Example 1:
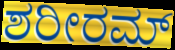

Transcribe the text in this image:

ಶರೀರಮ್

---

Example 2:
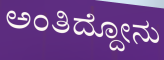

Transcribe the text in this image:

ಅಂತಿದ್ದೋನು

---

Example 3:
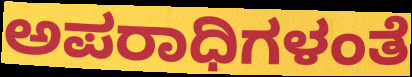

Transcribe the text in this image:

ಅಪರಾಧಿಗಳಂತೆ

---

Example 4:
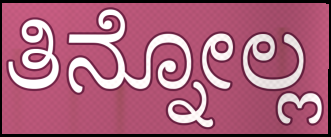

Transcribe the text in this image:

ತಿನ್ನೋಲ್ಲ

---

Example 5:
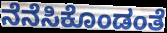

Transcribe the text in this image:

ನೆನೆಸಿಕೊಂಡಂತೆ